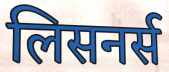
लिसनर्स